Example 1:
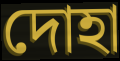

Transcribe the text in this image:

দোহা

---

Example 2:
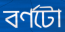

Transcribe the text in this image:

বৰ্ণটো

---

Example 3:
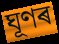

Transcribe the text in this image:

ঘূণৰ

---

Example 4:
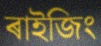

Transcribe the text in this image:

ৰাইজিং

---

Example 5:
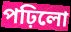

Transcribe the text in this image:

পঢ়িলো